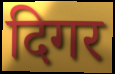
दिगर